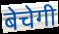
बेचेगी